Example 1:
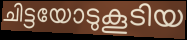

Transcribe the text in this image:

ചിട്ടയോടുകൂടിയ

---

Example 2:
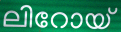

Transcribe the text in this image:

ലിറോയ്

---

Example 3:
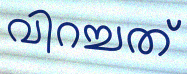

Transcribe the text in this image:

വിറച്ചത്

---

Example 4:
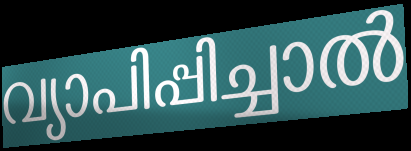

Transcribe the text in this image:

വ്യാപിപ്പിച്ചാൽ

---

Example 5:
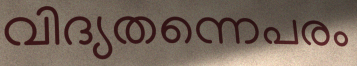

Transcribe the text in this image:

വിദ്യതന്നെപരം